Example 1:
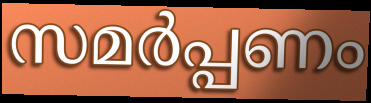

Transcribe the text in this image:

സമർപ്പണം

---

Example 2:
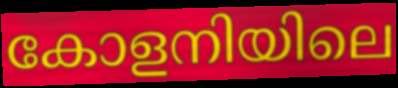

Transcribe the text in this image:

കോളനിയിലെ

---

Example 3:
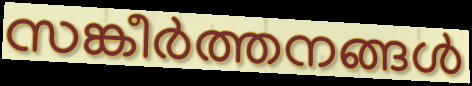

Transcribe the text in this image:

സങ്കീർത്തനങ്ങൾ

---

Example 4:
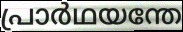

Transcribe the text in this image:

പ്രാർഥയന്തേ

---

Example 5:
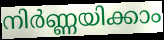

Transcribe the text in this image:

നിർണ്ണയിക്കാം